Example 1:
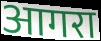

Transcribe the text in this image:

आगरा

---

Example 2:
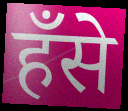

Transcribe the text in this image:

हँसे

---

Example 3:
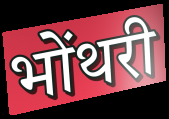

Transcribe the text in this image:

भोंथरी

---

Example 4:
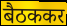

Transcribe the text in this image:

बैठककर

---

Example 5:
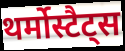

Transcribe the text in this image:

थर्मोस्टैट्स